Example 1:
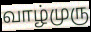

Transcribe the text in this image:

வாழ்முரு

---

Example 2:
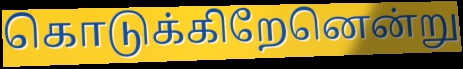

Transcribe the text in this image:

கொடுக்கிறேனென்று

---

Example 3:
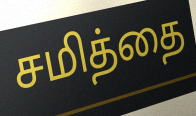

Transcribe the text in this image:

சமித்தை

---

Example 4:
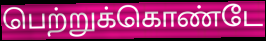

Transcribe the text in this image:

பெற்றுக்கொண்டே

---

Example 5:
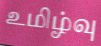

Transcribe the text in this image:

உமிழ்வு